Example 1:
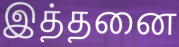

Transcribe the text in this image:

இத்தனை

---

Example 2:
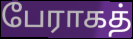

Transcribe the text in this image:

பேராகத்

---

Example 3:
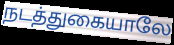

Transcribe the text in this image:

நடத்துகையாலே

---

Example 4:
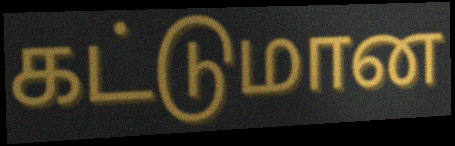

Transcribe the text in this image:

கட்டுமான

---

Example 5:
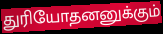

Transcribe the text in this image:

துரியோதனனுக்கும்